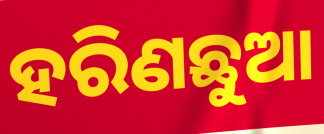
ହରିଣଛୁଆ